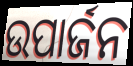
ଉପାର୍ଜନ